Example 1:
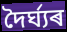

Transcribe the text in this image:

দৈৰ্ঘ্যৰ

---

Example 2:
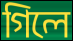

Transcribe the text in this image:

গিলে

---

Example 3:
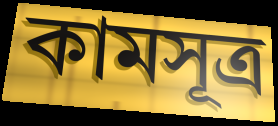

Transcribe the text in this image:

কামসূত্ৰ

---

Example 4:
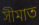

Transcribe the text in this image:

সীমাত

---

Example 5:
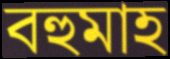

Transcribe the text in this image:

বহুমাহ